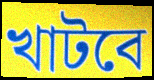
খাটবে